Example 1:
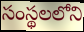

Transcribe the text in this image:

సంస్థలలోని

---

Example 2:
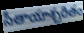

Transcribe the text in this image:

సీతాయాశ్చరితం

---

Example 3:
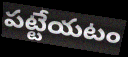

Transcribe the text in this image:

పట్టేయటం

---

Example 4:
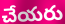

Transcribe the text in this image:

చేయరు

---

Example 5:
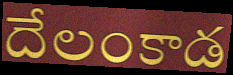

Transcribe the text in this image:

దేలంకాడ